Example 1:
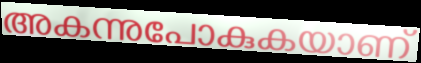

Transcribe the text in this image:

അകന്നുപോകുകയാണ്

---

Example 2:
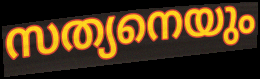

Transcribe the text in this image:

സത്യനെയും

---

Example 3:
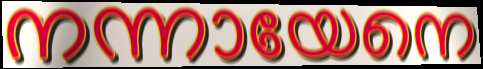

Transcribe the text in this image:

നന്നായേനെ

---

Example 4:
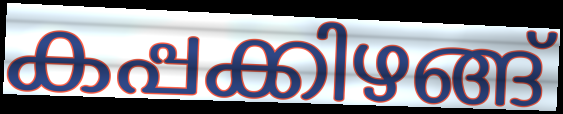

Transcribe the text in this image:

കപ്പക്കിഴങ്ങ്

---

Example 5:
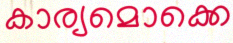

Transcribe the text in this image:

കാര്യമൊക്കെ